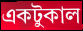
একটুকাল